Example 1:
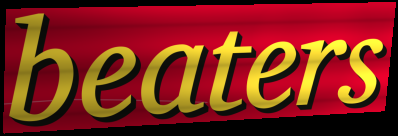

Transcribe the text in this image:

beaters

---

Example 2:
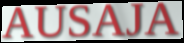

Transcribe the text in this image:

AUSAJA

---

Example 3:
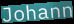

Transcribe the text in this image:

Johann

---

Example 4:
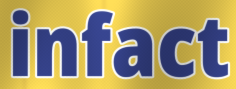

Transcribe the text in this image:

infact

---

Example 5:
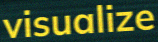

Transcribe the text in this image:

visualize